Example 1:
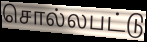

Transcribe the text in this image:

சொல்லபட்டு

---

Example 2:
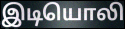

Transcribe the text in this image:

இடியொலி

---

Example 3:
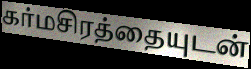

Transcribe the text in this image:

கர்மசிரத்தையுடன்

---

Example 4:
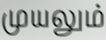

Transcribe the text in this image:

முயலும்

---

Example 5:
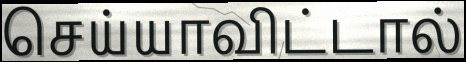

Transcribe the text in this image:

செய்யாவிட்டால்